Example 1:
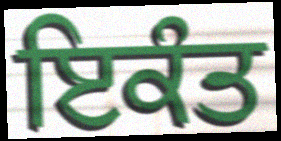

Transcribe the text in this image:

ਇਕੰਤ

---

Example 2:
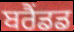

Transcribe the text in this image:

ਬਰੈਂਡਡ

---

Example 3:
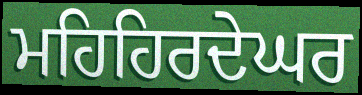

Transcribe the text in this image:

ਮਹਿਹਿਰਦੇਘਰ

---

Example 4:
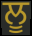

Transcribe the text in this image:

ਲੂ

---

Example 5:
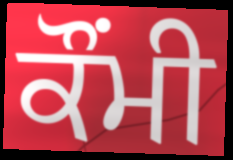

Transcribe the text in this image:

ਕੌਂਮੀ